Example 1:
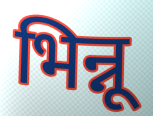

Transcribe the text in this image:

भिन्नू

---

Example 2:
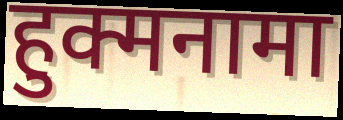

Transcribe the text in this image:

हुक्मनामा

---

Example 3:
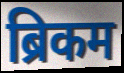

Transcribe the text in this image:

ब्रिकम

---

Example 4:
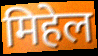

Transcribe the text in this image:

मिहेल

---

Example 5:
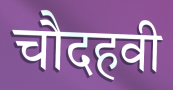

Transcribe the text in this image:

चौदहवी